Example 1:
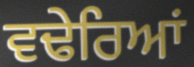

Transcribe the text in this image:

ਵਢੇਰਿਆਂ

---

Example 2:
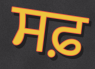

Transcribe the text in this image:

ਸਫ਼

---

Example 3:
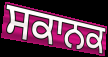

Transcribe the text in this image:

ਸਕਾਨਕ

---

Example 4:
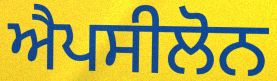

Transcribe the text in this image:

ਐਪਸੀਲੋਨ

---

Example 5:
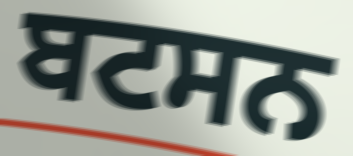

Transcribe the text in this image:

ਬਟਸਨ